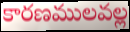
కారణములవల్ల